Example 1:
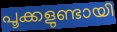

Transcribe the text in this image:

പൂക്കളുണ്ടായി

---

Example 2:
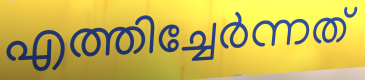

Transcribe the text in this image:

എത്തിച്ചേർന്നത്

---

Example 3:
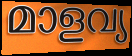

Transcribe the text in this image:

മാളവ്യ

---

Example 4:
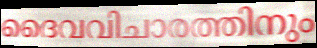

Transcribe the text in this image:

ദൈവവിചാരത്തിനും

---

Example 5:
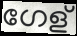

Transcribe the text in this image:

ഗേള്